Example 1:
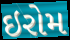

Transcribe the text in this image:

ઇરોમ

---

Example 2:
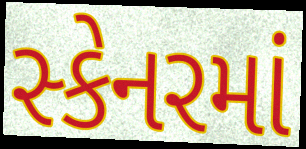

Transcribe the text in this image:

સ્કેનરમાં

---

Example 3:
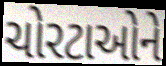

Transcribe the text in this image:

ચોરટાઓને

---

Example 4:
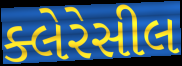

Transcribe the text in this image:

ક્લેરેસીલ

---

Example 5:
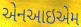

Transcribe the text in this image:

એનઆઇએમ